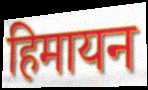
हिमायन